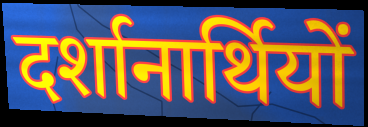
दर्शानार्थियों